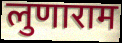
लुणाराम